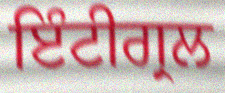
ਇੰਟੀਗ੍ਰਲ